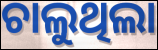
ଚାଲୁଥିଲା